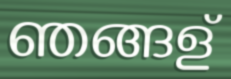
ഞങ്ങള്